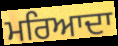
ਮਰਿਆਦਾ